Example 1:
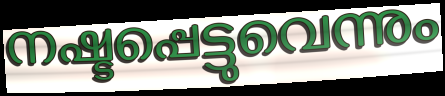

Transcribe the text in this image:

നഷ്ടപ്പെട്ടുവെന്നും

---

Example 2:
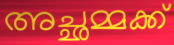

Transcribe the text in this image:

അച്ഛമ്മക്ക്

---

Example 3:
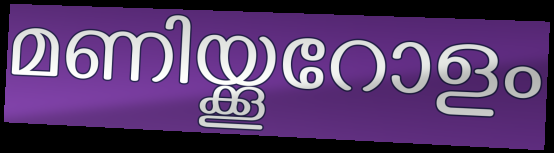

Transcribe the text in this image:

മണിയ്ക്കൂറോളം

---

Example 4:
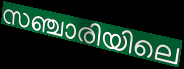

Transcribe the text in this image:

സഞ്ചാരിയിലെ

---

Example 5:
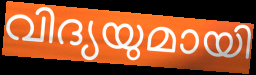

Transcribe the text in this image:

വിദ്യയുമായി